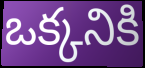
ఒక్కనికి